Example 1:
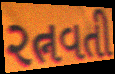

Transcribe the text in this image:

રત્નવતી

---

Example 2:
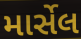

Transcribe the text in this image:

માર્સેલ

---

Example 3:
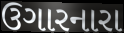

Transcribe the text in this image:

ઉગારનારા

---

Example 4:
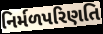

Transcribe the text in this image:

નિર્મળપરિણતિ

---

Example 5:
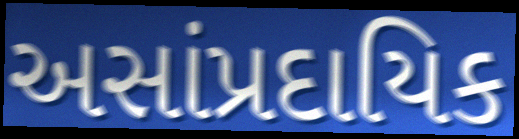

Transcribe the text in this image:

અસાંપ્રદાયિક